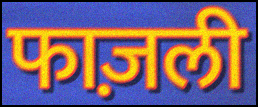
फाज़ली